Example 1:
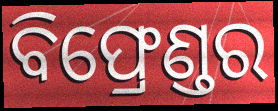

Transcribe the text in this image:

ବିଫ୍ରେଣ୍ଡର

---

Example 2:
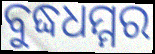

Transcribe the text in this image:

ବୁଦ୍ଧଧମ୍ମର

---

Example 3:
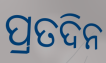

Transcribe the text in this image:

ପ୍ରତଦିନ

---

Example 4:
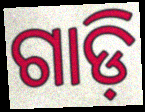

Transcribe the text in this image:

ଗାଡ଼ି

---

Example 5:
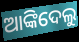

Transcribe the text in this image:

ଆଙ୍କିଦେଲୁ